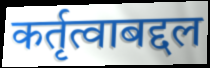
कर्तृत्वाबद्दल